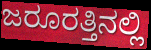
ಜರೂರತ್ತಿನಲ್ಲಿ